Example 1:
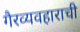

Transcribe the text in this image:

गैरव्यवहाराची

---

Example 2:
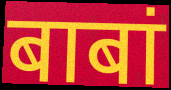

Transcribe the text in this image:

बाबां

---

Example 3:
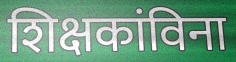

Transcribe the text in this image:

शिक्षकांविना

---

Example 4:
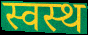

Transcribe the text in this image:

स्वस्थ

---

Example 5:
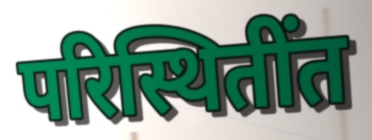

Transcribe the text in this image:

परिस्थितींत